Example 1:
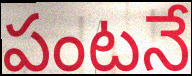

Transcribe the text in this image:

పంటనే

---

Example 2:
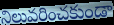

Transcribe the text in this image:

నిలువరించకుండా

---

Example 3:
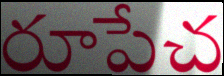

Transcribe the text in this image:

రూపేచ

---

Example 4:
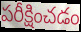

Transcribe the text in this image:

పరీక్షించడం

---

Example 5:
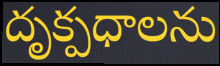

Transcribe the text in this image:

దృక్పధాలను